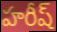
హరీష్